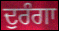
ਦੁਰੰਗਾ